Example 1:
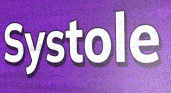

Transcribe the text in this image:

Systole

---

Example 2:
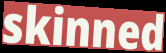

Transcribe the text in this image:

skinned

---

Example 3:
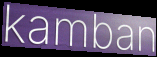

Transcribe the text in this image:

kamban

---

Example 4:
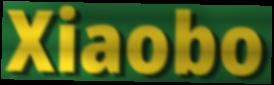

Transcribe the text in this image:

Xiaobo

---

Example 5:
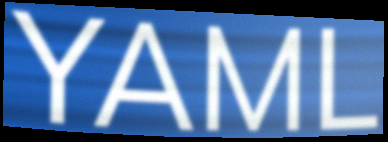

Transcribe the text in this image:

YAML